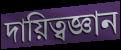
দায়িত্বজ্ঞান